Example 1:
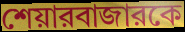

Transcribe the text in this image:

শেয়ারবাজারকে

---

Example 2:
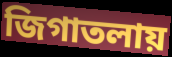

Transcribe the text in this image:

জিগাতলায়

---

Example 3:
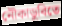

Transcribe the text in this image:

নৌকাডুবিতে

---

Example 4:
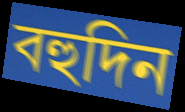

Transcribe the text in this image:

বহুদিন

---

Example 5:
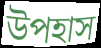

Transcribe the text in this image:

উপহাস